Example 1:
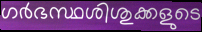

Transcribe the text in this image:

ഗർഭസ്ഥശിശുക്കളുടെ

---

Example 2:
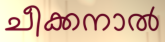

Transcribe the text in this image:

ചീക്കനാൽ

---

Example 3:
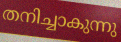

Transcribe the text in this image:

തനിച്ചാകുന്നു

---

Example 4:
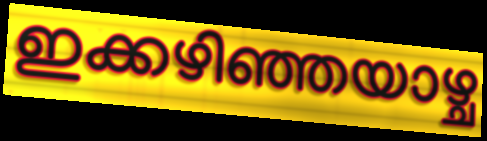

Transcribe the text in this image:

ഇക്കഴിഞ്ഞയാഴ്ച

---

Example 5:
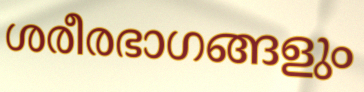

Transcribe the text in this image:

ശരീരഭാഗങ്ങളും